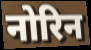
नोरिन